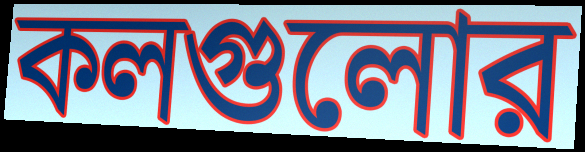
কলগুলোর